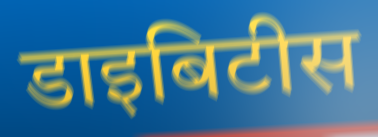
डाइबिटीस